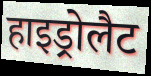
हाइड्रोलैट